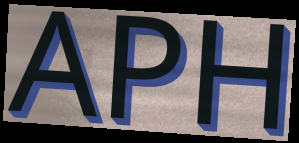
APH